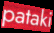
pataki